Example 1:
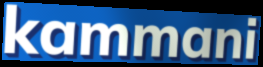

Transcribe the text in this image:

kammani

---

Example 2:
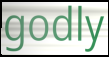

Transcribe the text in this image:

godly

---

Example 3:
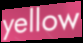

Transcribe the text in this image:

yellow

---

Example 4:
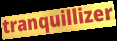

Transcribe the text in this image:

tranquillizer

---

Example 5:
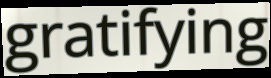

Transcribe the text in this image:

gratifying